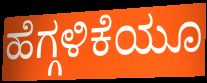
ಹೆಗ್ಗಳಿಕೆಯೂ